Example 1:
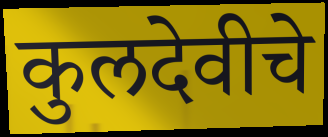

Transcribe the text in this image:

कुलदेवीचे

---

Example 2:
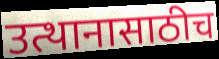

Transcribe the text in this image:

उत्थानासाठीच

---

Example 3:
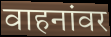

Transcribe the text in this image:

वाहनांवर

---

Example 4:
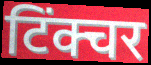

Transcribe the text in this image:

टिंक्चर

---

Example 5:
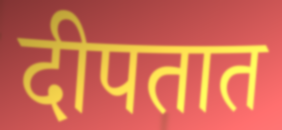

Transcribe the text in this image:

दीपतात